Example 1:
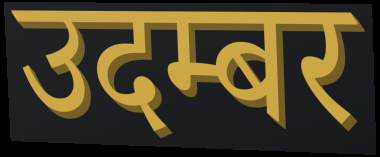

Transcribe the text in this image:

उदम्बर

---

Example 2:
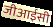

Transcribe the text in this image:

जीआईसी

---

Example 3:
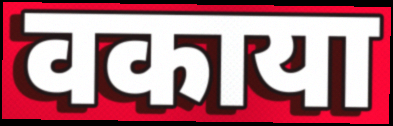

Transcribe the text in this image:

वकाया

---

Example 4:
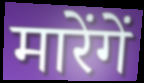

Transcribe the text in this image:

मारेंगें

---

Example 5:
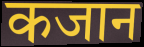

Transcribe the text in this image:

कजान